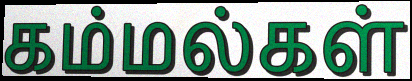
கம்மல்கள்